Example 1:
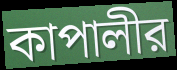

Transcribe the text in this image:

কাপালীর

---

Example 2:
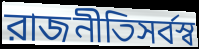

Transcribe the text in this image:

রাজনীতিসর্বস্ব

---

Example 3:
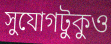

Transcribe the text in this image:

সুযোগটুকুও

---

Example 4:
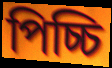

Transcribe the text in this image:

পিচ্চি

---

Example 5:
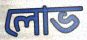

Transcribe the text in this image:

লোভ